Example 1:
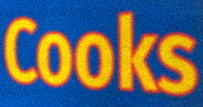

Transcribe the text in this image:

Cooks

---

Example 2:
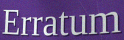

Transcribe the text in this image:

Erratum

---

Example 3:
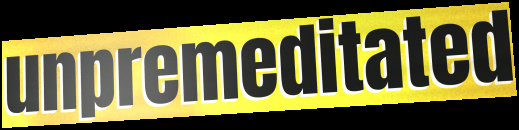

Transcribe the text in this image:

unpremeditated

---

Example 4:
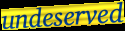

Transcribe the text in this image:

undeserved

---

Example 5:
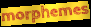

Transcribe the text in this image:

morphemes